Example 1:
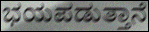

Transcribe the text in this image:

ಭಯಪಡುತ್ತಾನೆ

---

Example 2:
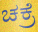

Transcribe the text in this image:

ಚಕ್ರೆ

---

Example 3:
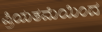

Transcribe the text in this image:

ಪ್ರಿಯತಮೆಯಿಂದ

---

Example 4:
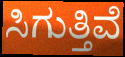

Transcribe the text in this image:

ಸಿಗುತ್ತಿವೆ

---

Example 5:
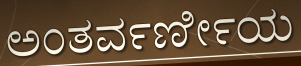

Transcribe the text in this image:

ಅಂತರ್ವರ್ಣೀಯ